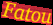
Fatou